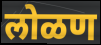
लोळण